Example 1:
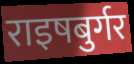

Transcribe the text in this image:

राइषबुर्गर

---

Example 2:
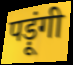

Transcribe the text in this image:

पड़ूंगी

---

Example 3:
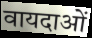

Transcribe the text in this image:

वायदाओं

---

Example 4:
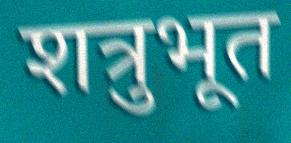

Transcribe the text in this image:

शत्रुभूत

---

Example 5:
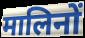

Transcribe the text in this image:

मालिनों